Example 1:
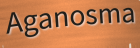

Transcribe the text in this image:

Aganosma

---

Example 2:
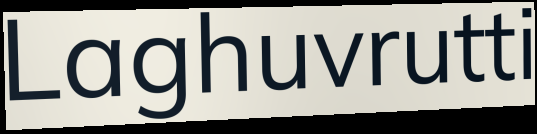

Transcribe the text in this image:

Laghuvrutti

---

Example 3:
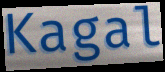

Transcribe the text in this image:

Kagal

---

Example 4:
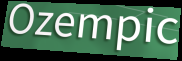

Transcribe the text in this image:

Ozempic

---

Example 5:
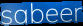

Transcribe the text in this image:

sabeer